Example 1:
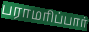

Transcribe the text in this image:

பராமரிப்பார்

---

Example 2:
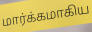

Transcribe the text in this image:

மார்க்கமாகிய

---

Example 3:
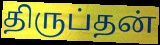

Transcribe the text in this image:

திருப்தன்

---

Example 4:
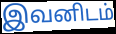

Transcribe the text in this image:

இவனிடம்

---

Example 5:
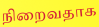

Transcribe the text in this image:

நிறைவதாக